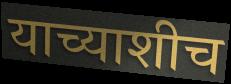
याच्याशीच